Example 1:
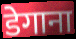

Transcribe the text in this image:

डेगाना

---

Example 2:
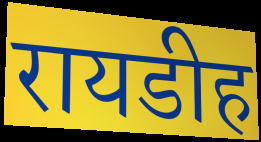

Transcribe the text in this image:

रायडीह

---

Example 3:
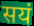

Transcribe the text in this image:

सयं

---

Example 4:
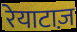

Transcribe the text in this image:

रेयाटाज़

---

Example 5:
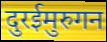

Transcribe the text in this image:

दुरईमुरुगन